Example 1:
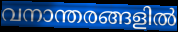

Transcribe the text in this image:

വനാന്തരങ്ങളിൽ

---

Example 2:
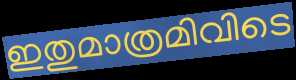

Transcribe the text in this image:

ഇതുമാത്രമിവിടെ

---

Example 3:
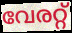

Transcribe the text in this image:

വേരറ്റ്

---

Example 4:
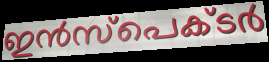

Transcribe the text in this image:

ഇൻസ്പെക്ടർ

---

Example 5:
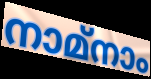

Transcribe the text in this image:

നാമ്നാം